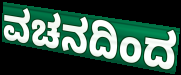
ವಚನದಿಂದ